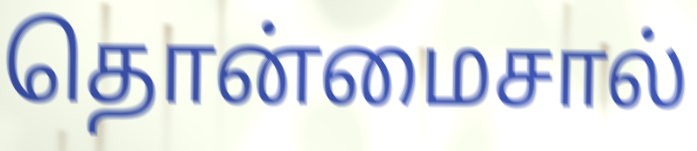
தொன்மைசால்